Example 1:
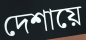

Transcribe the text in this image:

দেশায়ে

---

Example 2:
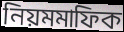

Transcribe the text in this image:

নিয়মমাফিক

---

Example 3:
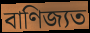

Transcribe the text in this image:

বাণিজ্যত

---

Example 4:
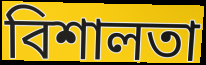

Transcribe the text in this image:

বিশালতা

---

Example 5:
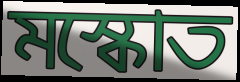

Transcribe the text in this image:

মস্কোত